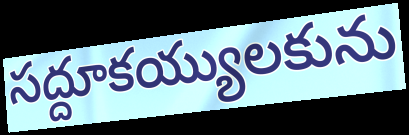
సద్దూకయ్యులకును